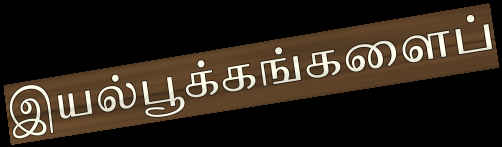
இயல்பூக்கங்களைப்